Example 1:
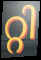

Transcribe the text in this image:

റ്റി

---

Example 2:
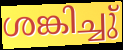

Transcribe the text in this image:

ശങ്കിച്ചു്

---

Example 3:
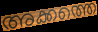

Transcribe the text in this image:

അക്കത്തെ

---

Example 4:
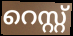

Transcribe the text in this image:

റെസ്റ്റ്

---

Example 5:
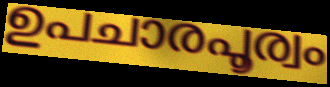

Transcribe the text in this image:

ഉപചാരപൂര്വം